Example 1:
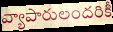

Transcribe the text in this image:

వ్యాపారులందరికీ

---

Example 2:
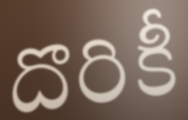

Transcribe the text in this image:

దొరికీ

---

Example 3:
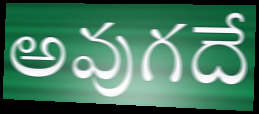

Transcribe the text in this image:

అవుగదే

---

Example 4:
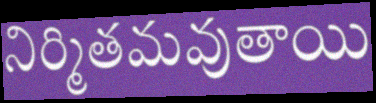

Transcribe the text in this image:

నిర్మితమవుతాయి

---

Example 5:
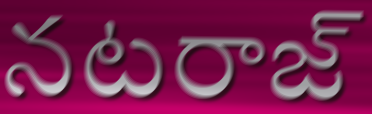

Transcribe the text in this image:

నటరాజ్